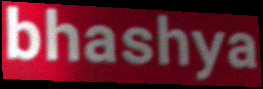
bhashya